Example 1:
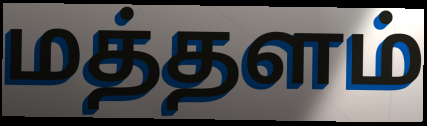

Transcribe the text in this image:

மத்தளம்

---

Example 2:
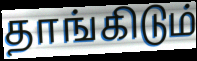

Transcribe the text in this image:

தாங்கிடும்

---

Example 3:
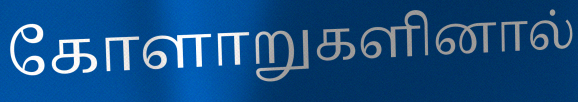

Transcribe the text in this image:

கோளாறுகளினால்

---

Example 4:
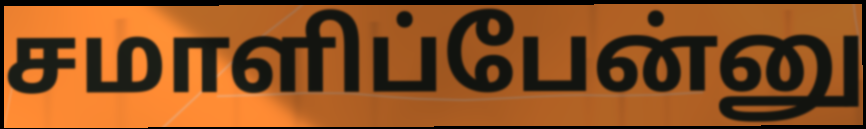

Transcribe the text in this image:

சமாளிப்பேன்னு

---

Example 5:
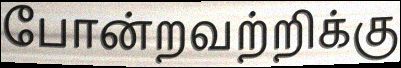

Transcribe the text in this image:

போன்றவற்றிக்கு